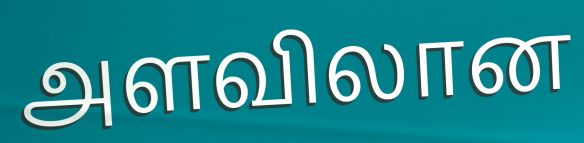
அளவிலான